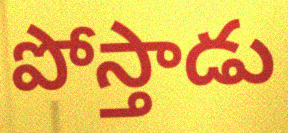
పోస్తాడు